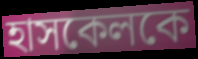
হাসকেলকে